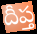
దీప్త